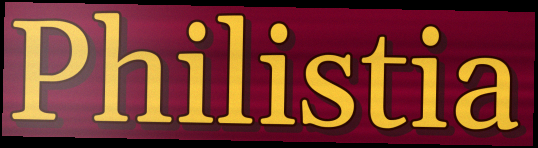
Philistia